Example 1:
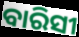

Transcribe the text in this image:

ବାରିସୀ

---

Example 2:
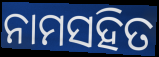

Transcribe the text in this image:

ନାମସହିତ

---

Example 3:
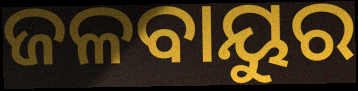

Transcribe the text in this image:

ଜଳବାୟୁର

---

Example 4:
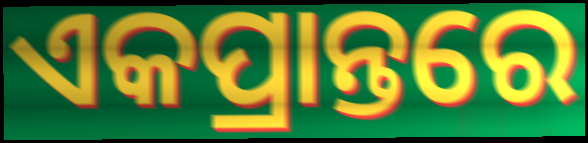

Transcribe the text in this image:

ଏକପ୍ରାନ୍ତରେ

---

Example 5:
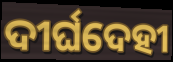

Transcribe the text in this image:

ଦୀର୍ଘଦେହୀ